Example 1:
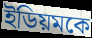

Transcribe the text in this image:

ইডিয়মকে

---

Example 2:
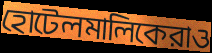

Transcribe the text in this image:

হোটেলমালিকেরাও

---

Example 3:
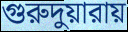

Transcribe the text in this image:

গুরুদুয়ারায়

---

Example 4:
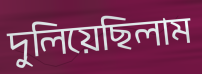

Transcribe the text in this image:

দুলিয়েছিলাম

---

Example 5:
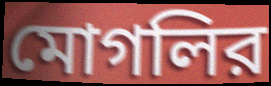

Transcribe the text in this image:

মোগলির